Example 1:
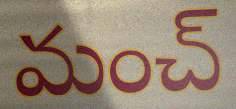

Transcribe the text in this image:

మంచ్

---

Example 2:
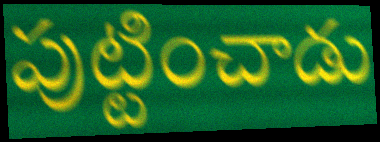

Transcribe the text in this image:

పుట్టించాడు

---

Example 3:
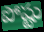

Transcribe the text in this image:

పోష్టు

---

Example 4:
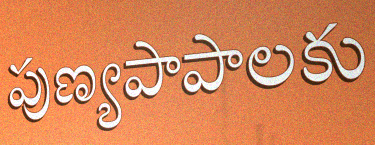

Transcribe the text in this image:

పుణ్యపాపాలకు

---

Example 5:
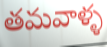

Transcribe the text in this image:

తమవాళ్ళ